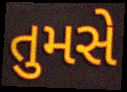
તુમસે